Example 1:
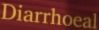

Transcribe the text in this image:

Diarrhoeal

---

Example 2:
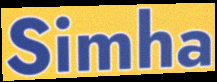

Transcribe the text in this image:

Simha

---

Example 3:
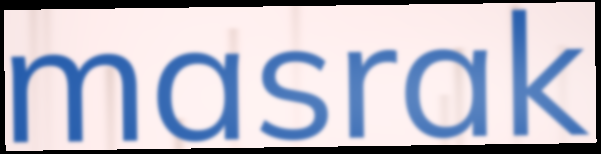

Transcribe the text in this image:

masrak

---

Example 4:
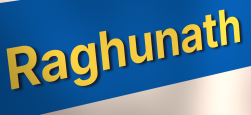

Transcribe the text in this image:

Raghunath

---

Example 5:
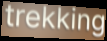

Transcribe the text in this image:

trekking